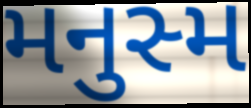
મનુસ્મ